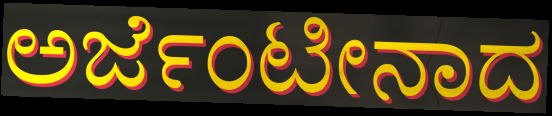
ಅರ್ಜೆಂಟೀನಾದ